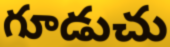
గూడుచు